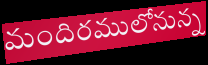
మందిరములోనున్న